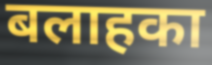
बलाहका